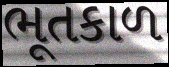
ભૂતકાળ